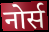
नोर्स